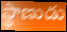
స్థాణుడు